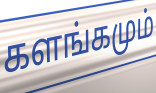
களங்கமும்